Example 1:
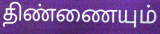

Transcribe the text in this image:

திண்ணையும்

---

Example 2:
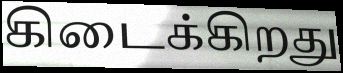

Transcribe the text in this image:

கிடைக்கிறது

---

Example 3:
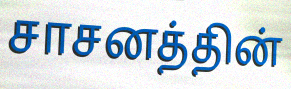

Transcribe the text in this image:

சாசனத்தின்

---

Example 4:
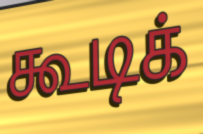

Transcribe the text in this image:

கூடிக்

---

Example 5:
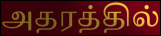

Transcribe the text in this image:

அதரத்தில்